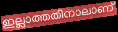
ഇല്ലാത്തതിനാലാണ്